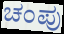
ಚಂಪು